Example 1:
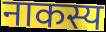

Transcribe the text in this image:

नाकस्य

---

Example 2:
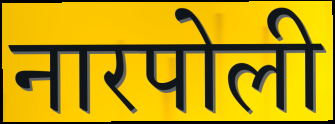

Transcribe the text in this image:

नारपोली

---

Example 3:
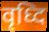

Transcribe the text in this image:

वृध्दि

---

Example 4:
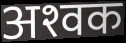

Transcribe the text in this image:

अश्वक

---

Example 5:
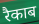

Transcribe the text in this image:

रैकाब